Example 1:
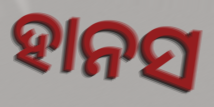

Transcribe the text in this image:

ହାନସ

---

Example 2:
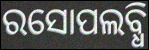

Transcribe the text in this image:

ରସୋପଲବ୍ଧି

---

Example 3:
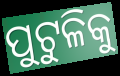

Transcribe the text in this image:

ପୁଟୁଳିକୁ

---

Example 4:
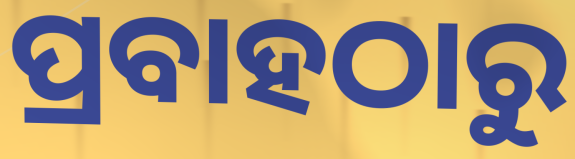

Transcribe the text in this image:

ପ୍ରବାହଠାରୁ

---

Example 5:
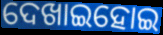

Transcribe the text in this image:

ଦେଖାଇହୋଇ